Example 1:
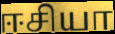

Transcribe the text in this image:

ஈசியா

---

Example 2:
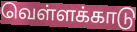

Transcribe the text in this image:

வெள்ளக்காடு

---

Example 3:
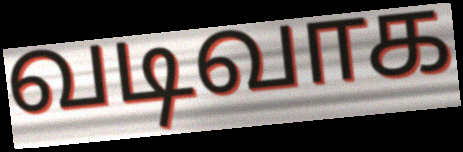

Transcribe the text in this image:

வடிவாக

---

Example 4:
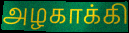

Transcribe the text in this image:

அழகாக்கி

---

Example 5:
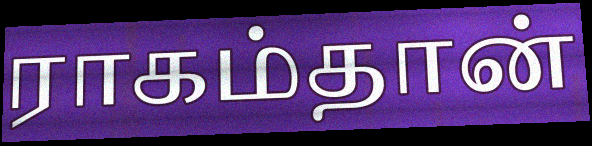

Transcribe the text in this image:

ராகம்தான்